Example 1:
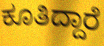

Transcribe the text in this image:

ಕೂತಿದ್ದಾರೆ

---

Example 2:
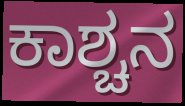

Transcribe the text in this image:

ಕಾಶ್ಚನ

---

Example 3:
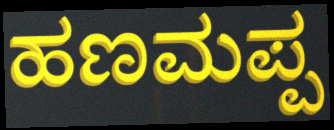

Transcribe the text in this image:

ಹಣಮಪ್ಪ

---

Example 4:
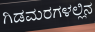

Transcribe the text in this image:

ಗಿಡಮರಗಳಲ್ಲಿನ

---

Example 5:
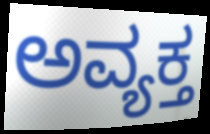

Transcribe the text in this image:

ಅವ್ಯಕ್ತ